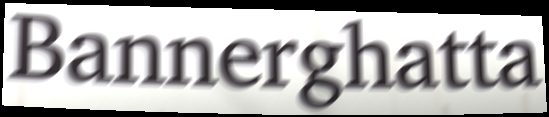
Bannerghatta